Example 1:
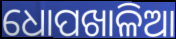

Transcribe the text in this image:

ଧୋପଖାଳିଆ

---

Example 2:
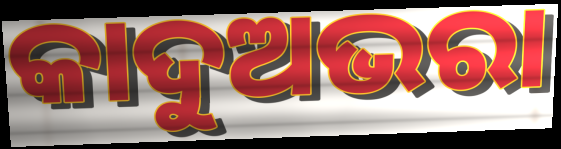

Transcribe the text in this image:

କାଦୁଅଭରା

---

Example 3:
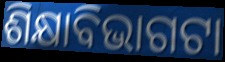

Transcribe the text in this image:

ଶିକ୍ଷାବିଭାଗଟା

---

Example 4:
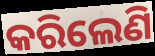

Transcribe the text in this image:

କରିଲେଣି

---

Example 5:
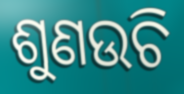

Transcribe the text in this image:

ଶୁଣଉଚି